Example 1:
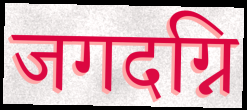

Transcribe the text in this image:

जगदग्नि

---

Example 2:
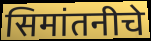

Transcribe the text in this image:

सिमांतनीचे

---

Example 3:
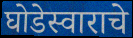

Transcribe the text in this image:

घोडेस्वाराचे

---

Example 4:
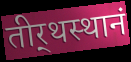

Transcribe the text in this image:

तीर्थस्थानं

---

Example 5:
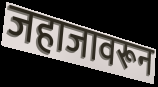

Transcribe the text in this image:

जहाजावरून